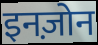
इनज़ोन